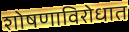
शोषणाविरोधात